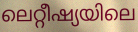
ലെറ്റീഷ്യയിലെ